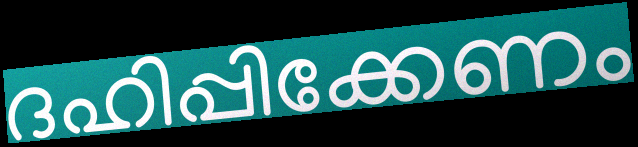
ദഹിപ്പിക്കേണം